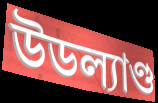
উডল্যাণ্ড